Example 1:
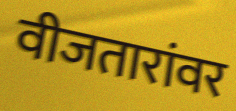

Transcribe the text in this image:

वीजतारांवर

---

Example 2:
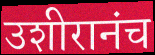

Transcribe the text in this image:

उशीरानंच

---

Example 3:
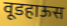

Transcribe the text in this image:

वूडहाऊस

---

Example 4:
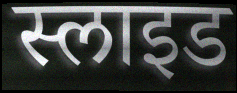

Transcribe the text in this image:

स्लाइड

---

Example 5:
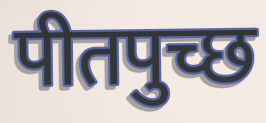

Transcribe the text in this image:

पीतपुच्छ